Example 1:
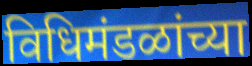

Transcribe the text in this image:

विधिमंडळांच्या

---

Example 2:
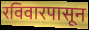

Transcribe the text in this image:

रविवारपासून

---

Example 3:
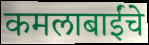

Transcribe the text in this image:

कमलाबाईंचे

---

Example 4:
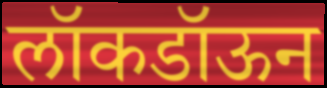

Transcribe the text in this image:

लॉकडॉऊन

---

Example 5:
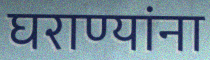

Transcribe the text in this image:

घराण्यांना